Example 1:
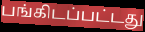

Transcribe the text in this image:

பங்கிடப்பட்டது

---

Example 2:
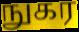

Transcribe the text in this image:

நுகர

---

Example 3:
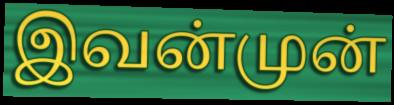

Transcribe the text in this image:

இவன்முன்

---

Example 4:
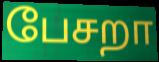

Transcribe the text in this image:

பேசறா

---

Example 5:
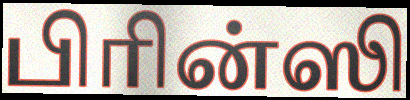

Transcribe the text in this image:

பிரின்ஸி